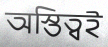
অস্তিত্বই